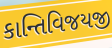
કાન્તિવિજયજી